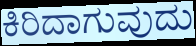
ಕಿರಿದಾಗುವುದು